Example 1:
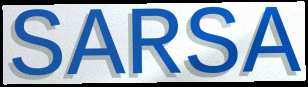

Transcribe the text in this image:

SARSA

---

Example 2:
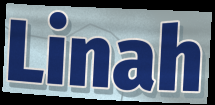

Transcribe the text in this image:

Linah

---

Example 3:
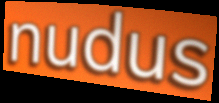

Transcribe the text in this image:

nudus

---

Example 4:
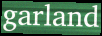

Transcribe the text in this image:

garland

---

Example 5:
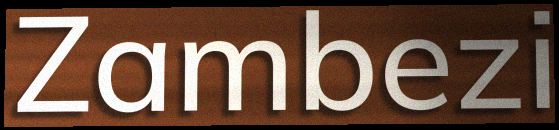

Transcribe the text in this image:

Zambezi